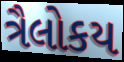
ત્રૈલોકય